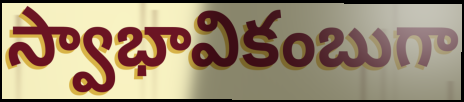
స్వాభావికంబుగా